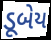
ડૂબેય